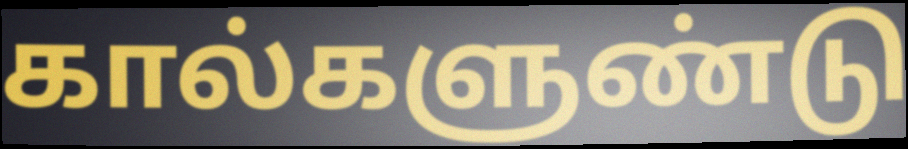
கால்களுண்டு